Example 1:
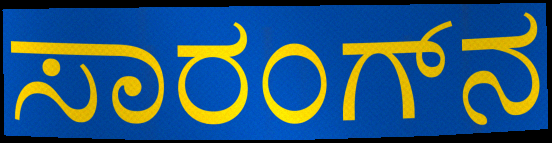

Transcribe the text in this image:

ಸಾರಂಗ್‌ನ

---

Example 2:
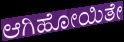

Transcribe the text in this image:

ಆಗಿಹೋಯಿತೇ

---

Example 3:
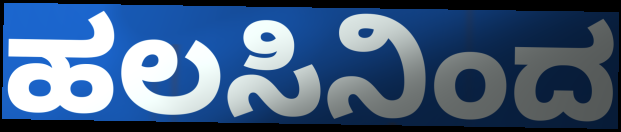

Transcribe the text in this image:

ಹಲಸಿನಿಂದ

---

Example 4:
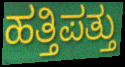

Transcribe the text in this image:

ಹತ್ತಿಪತ್ತು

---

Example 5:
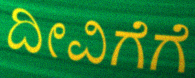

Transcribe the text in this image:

ದೀವಿಗೆಗೆ